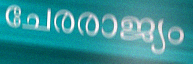
ചേരരാജ്യം